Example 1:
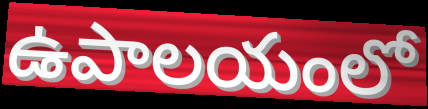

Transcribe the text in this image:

ఉపాలయంలో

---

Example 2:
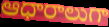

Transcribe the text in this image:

ఆధారాలుగా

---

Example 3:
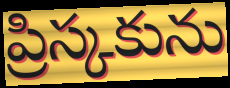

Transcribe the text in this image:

ప్రిస్కకును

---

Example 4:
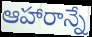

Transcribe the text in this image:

ఆహారాన్నే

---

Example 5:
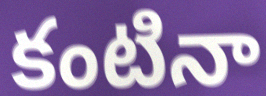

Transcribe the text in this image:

కంటినా